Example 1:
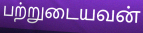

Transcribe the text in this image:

பற்றுடையவன்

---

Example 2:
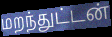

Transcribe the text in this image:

மறந்துட்டன்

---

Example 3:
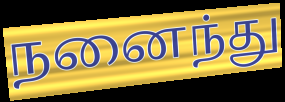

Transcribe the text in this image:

நனைந்து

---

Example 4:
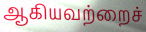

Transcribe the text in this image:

ஆகியவற்றைச்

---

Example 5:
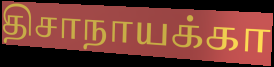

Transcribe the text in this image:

திசாநாயக்கா